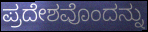
ಪ್ರದೇಶವೊಂದನ್ನು